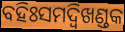
ବହିଃସମଦ୍ୱିଖଣ୍ଡକ